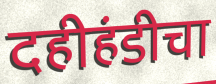
दहीहंडीचा